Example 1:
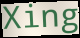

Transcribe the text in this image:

Xing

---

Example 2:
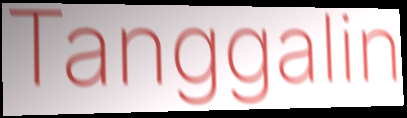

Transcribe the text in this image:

Tanggalin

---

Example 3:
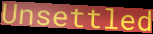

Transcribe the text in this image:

Unsettled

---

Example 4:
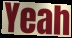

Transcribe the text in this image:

Yeah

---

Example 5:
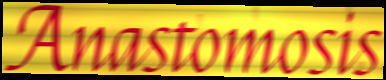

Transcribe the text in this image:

Anastomosis